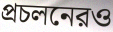
প্রচলনেরও